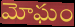
మోఘం